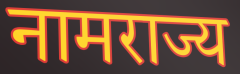
नामराज्य